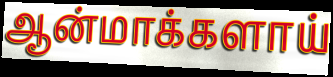
ஆன்மாக்களாய்